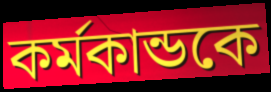
কর্মকান্ডকে